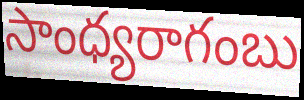
సాంధ్యరాగంబు